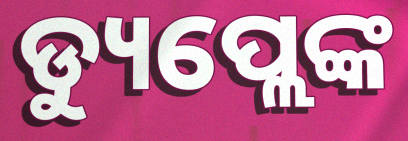
ଡ୍ୟୁପ୍ଲେଙ୍କ